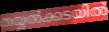
തയ്യൽക്കടയിൽ